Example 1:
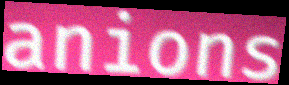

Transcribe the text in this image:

anions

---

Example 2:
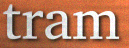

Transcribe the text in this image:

tram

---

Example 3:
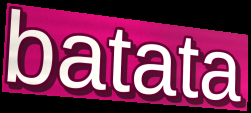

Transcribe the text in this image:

batata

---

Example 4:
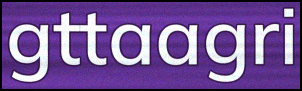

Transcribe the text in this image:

gttaagri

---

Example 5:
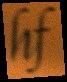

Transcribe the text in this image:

hf